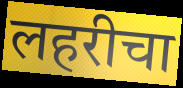
लहरीचा